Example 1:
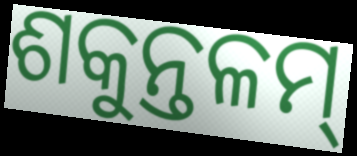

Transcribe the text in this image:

ଶକୁନ୍ତଳମ୍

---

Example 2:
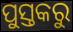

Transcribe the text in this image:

ପୁସ୍ତକରୁ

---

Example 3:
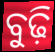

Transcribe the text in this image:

ବୁଢ଼ି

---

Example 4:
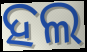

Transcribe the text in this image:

ହଲ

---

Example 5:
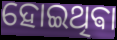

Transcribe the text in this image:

ହୋଇଥିଵା